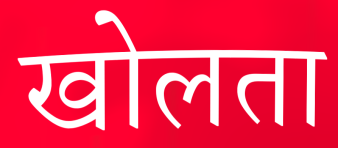
खोलता